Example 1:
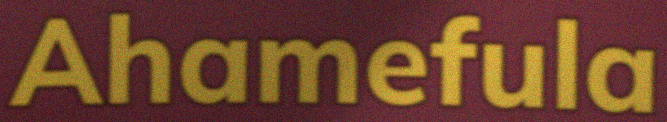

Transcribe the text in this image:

Ahamefula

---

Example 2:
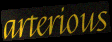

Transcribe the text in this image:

arterious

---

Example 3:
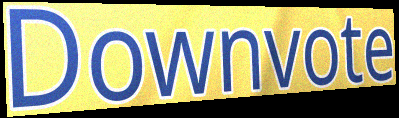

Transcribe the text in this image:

Downvote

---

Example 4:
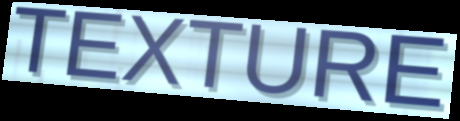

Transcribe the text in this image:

TEXTURE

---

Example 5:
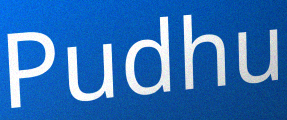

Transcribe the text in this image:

Pudhu